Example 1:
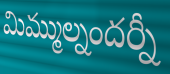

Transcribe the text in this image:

మిమ్ముల్నందర్నీ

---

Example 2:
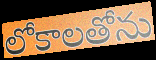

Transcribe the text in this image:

లోకాలతోను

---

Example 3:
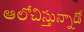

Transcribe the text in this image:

ఆలోచిస్తున్నాడో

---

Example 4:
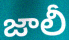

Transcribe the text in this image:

జాలీ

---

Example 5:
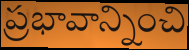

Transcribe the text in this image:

ప్రభావాన్నించి